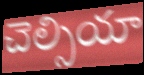
చెల్సియా